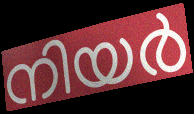
നിയർ